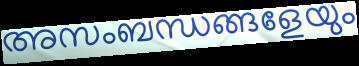
അസംബന്ധങ്ങളേയും